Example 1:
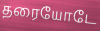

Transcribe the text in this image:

தரையோடே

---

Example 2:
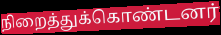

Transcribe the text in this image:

நிறைத்துக்கொண்டனர்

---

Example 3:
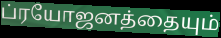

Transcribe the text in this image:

ப்ரயோஜனத்தையும்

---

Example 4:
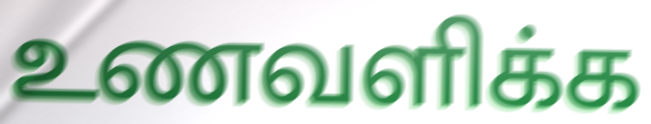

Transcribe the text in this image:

உணவளிக்க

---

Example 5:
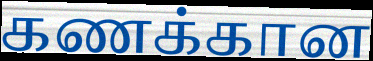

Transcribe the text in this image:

கணக்கான